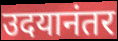
उदयानंतर